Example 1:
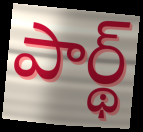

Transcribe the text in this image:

పార్థ్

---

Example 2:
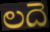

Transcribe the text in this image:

లదె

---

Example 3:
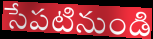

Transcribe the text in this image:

సేపటినుండి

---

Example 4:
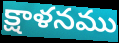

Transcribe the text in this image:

క్షాళనము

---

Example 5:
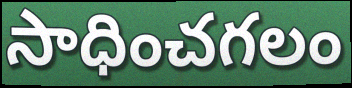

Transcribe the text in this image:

సాధించగలం